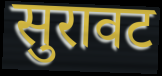
सुरावट